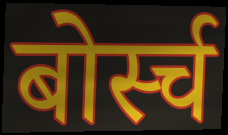
बोर्स्च